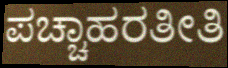
ಪಚ್ಚಾಹರತೀತಿ